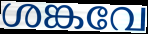
ശങ്കവേ